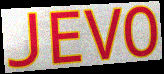
JEVO